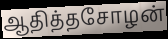
ஆதித்தசோழன்